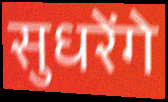
सुधरेंगे